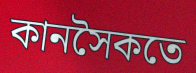
কানসৈকতে